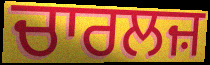
ਚਾਰਲਜ਼